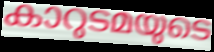
കാറുടമയുടെ